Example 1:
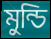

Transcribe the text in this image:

মুন্ডি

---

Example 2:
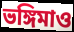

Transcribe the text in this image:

ভঙ্গিমাও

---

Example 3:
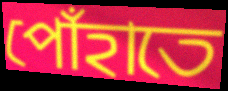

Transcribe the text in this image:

পোঁহাতে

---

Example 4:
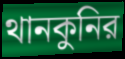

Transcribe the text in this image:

থানকুনির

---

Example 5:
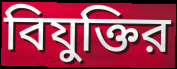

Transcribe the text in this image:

বিযুক্তির